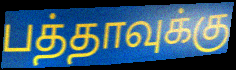
பத்தாவுக்கு